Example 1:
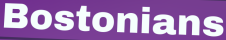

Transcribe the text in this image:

Bostonians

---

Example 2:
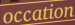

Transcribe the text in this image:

occation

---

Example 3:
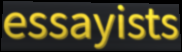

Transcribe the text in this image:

essayists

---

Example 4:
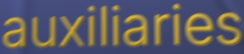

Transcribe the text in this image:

auxiliaries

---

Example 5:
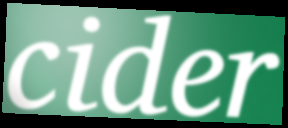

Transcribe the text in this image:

cider